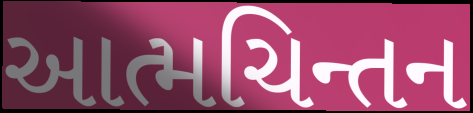
આત્મચિન્તન